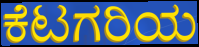
ಕೆಟಗರಿಯ